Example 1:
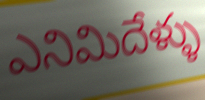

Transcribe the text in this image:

ఎనిమిదేళ్ళు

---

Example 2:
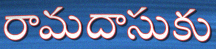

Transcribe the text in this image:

రామదాసుకు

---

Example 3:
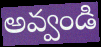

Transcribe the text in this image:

అవ్వండి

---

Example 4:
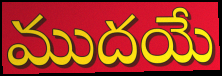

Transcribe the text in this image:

ముదయే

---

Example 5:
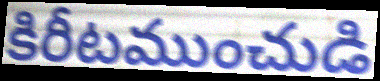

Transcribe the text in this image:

కిరీటముంచుడి